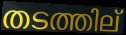
തടത്തില്